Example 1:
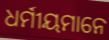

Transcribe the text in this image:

ଧର୍ମୀୟମାନେ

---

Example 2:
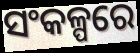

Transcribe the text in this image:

ସଂକଳ୍ପରେ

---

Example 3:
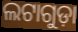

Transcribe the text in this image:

ଲଟାଗୁଡ଼ା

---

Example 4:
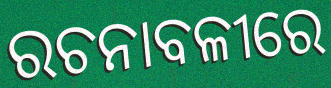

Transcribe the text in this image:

ରଚନାବଳୀରେ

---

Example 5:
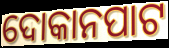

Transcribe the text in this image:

ଦୋକାନପାଟ